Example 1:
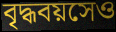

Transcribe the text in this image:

বৃদ্ধবয়সেও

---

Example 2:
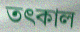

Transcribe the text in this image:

তৎকাল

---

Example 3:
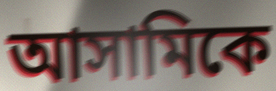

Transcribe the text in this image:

আসামিকে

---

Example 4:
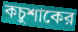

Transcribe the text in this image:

কচুশাকের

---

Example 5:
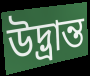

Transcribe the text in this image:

উদ্ভ্রান্ত